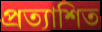
প্রত্যাশিত